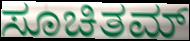
ಸೂಚಿತಮ್